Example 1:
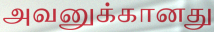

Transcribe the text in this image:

அவனுக்கானது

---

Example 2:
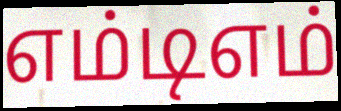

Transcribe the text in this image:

எம்டிஎம்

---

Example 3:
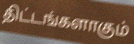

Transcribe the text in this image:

திட்டங்களாகும்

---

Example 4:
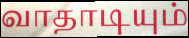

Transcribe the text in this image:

வாதாடியும்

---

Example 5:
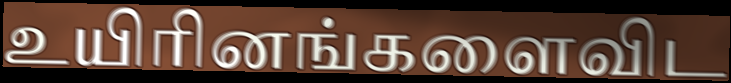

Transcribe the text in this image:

உயிரினங்களைவிட